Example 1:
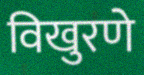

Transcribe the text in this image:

विखुरणे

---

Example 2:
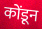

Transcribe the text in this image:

कोंडून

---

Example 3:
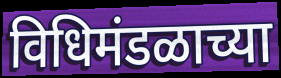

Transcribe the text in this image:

विधिमंडळाच्या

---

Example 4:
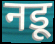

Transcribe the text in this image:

नडू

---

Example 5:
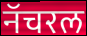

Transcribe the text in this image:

नॅचरल